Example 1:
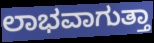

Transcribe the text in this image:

ಲಾಭವಾಗುತ್ತಾ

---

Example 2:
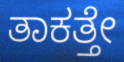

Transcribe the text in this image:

ತಾಕತ್ತೇ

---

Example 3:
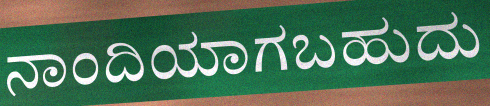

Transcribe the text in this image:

ನಾಂದಿಯಾಗಬಹುದು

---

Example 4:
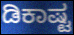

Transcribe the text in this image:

ಡಿಕಾಷ್ಟ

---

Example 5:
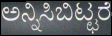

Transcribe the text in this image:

ಅನ್ನಿಸಿಬಿಟ್ಟರೆ